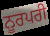
ਨੂਰਪਰੀ